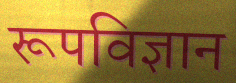
रूपविज्ञान